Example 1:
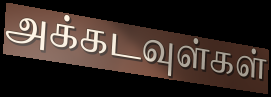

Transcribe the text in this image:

அக்கடவுள்கள்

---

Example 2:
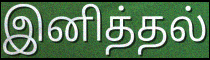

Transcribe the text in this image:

இனித்தல்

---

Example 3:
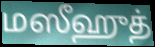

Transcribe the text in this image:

மஸீஹுத்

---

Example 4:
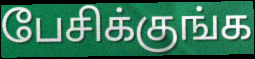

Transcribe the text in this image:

பேசிக்குங்க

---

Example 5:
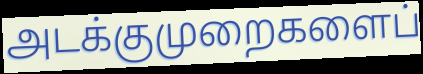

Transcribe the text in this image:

அடக்குமுறைகளைப்